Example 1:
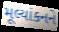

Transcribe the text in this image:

મૂલ્યાંકનને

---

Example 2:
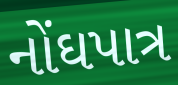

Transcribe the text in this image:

નોંઘપાત્ર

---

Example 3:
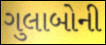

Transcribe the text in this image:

ગુલાબોની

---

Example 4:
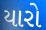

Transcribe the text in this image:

યારો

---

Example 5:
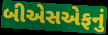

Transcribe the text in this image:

બીએસએફનું